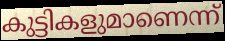
കുട്ടികളുമാണെന്ന്